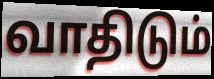
வாதிடும்